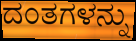
ದಂತಗಳನ್ನು